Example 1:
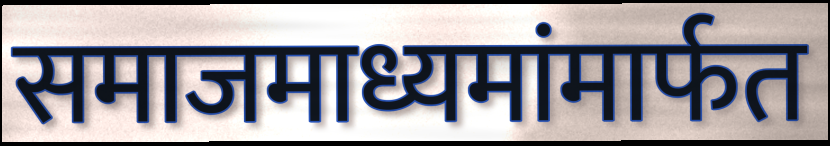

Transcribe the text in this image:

समाजमाध्यमांमार्फत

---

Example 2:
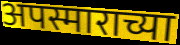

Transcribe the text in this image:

अपस्माराच्या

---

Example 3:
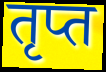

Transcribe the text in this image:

तृप्त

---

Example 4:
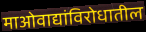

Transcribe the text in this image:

माओवाद्यांविरोधातील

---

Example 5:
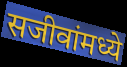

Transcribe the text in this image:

सजीवांमध्ये